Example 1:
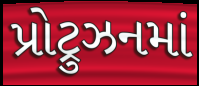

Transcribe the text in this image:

પ્રોટ્રુઝનમાં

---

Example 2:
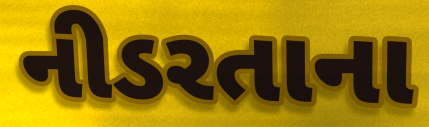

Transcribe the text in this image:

નીડરતાના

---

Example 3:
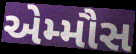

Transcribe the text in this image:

એમ્મૌસ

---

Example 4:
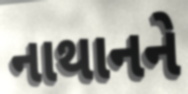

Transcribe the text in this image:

નાથાનને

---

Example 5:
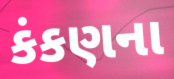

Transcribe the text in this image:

કંકણના